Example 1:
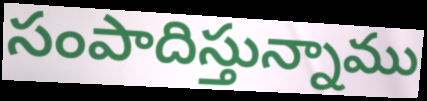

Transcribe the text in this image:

సంపాదిస్తున్నాము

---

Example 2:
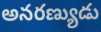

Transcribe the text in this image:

అనరణ్యుడు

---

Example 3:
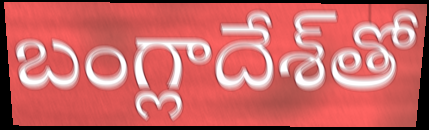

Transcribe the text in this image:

బంగ్లాదేశ్‌తో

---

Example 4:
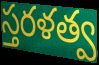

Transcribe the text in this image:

స్తరళత్వ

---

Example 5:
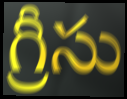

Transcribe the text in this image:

గ్రీసు